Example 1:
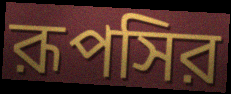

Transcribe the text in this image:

রূপসির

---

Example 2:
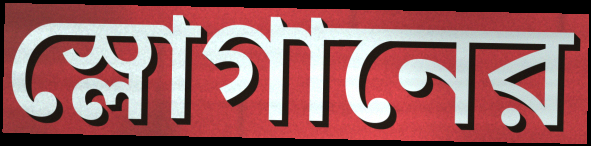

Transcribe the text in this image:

স্লোগানের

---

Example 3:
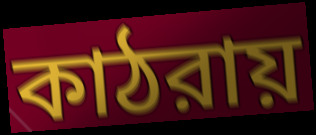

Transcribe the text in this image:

কাঠরায়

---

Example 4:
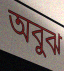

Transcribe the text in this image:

অবুঝ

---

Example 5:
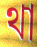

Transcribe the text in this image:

থা